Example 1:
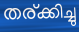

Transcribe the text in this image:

തര്ക്കിച്ചു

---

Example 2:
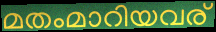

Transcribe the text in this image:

മതംമാറിയവര്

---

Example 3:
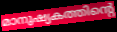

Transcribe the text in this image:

മാനുഷ്യകത്തിന്റെ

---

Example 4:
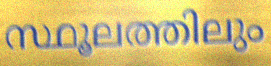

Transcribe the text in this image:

സ്ഥൂലത്തിലും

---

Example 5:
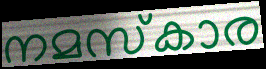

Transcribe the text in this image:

നമസ്കാര